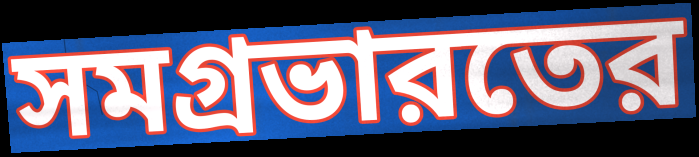
সমগ্রভারতের